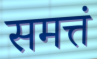
समत्तं